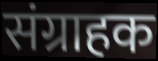
संग्राहक